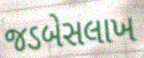
જડબેસલાખ